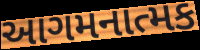
આગમનાત્મક